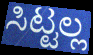
ಸಿಟ್ಟಲ್ಲ